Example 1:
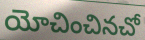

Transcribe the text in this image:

యోచించినచో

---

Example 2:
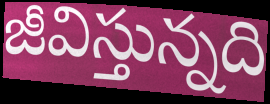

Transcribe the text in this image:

జీవిస్తున్నది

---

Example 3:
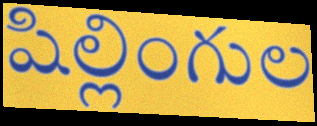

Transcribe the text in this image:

షిల్లింగుల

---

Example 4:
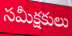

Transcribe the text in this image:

సమీక్షకులు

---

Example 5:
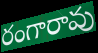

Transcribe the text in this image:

రంగారావు